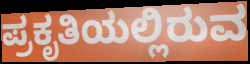
ಪ್ರಕೃತಿಯಲ್ಲಿರುವ